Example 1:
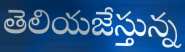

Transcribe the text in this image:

తెలియజేస్తున్న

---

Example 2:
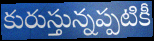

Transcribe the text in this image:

కురుస్తున్నప్పటికీ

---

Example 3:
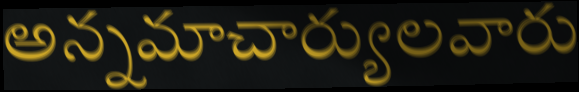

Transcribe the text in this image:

అన్నమాచార్యులవారు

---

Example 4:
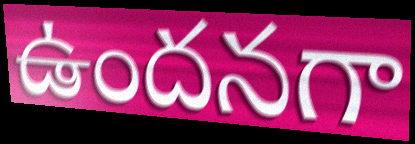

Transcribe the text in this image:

ఉందనగా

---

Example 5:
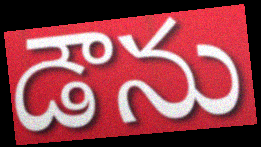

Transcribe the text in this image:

డౌను